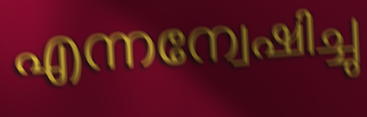
എന്നന്വേഷിച്ചു